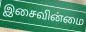
இசைவின்மை